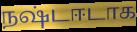
நஷ்டஈடாக